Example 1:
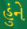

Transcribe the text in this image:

હુંને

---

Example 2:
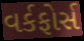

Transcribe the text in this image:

વર્કફોર્સ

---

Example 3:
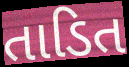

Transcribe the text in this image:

તાડિત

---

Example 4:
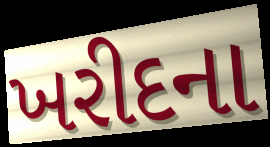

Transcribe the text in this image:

ખરીદના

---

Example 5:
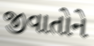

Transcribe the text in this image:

જીવાતોને